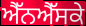
ਐੱਨਐੱਸਕੇ